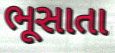
ભૂસાતા